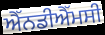
ਐੱਨਡੀਐੱਮਸੀ